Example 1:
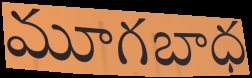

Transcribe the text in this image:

మూగబాధ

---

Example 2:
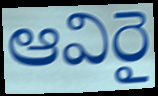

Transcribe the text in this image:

ఆవిరై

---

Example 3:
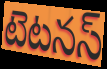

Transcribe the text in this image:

టెటనస్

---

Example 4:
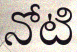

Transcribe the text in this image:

నోటి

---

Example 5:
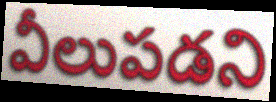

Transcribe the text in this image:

వీలుపడని